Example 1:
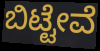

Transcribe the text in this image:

ಬಿಟ್ಟೇವೆ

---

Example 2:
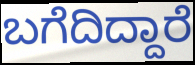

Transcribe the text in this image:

ಬಗೆದಿದ್ದಾರೆ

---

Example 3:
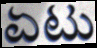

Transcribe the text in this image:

ಏಟು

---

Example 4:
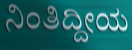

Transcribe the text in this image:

ನಿಂತಿದ್ದೀಯ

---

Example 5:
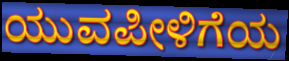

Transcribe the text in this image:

ಯುವಪೀಳಿಗೆಯ